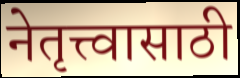
नेतृत्त्वासाठी